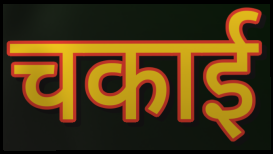
चकाई